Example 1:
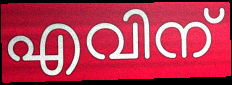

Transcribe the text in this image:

എവിന്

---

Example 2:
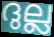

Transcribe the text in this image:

ദുല്ല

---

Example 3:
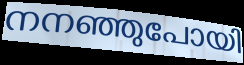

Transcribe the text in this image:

നനഞ്ഞുപോയി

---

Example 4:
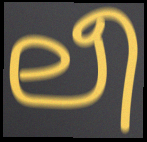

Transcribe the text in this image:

ലീ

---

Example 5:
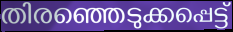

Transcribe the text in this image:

തിരഞ്ഞെടുക്കപ്പെട്ട്